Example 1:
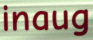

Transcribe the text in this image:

inaug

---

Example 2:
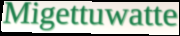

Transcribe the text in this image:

Migettuwatte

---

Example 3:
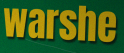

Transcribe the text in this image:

warshe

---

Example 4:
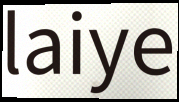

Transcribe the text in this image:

laiye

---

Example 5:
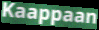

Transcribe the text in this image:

Kaappaan